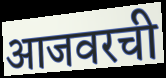
आजवरची